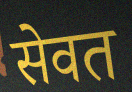
सेवत